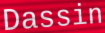
Dassin